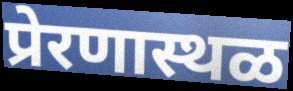
प्रेरणास्थळ